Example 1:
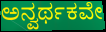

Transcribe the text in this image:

ಅನ್ವರ್ಥಕವೇ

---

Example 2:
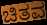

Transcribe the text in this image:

ಚಿತವ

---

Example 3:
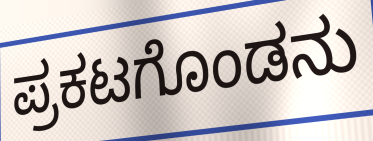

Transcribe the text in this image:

ಪ್ರಕಟಗೊಂಡನು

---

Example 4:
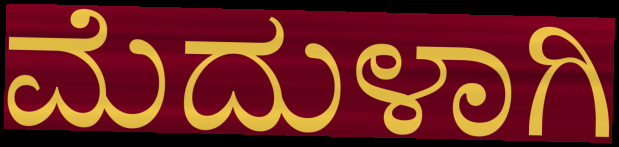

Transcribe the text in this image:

ಮೆದುಳಾಗಿ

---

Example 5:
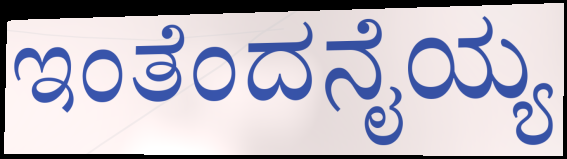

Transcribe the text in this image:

ಇಂತೆಂದನೈಯ್ಯ